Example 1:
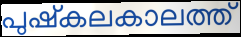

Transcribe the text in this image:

പുഷ്കലകാലത്ത്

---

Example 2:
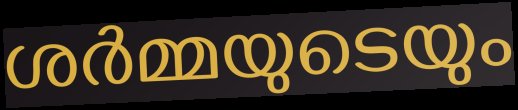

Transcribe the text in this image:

ശർമ്മയുടെയും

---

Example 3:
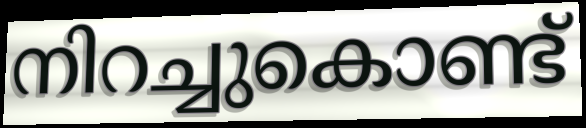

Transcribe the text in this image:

നിറച്ചുകൊണ്ട്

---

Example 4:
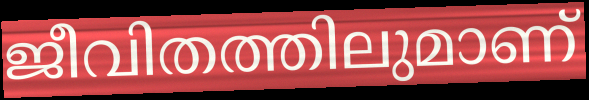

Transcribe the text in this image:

ജീവിതത്തിലുമാണ്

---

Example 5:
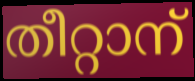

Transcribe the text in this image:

തീറ്റാന്